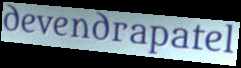
devendrapatel